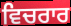
ਵਿਚਰਾਰ